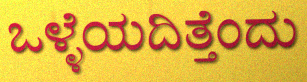
ಒಳ್ಳೆಯದಿತ್ತೆಂದು